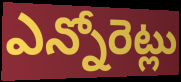
ఎన్నోరెట్లు